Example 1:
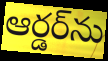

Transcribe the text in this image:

ఆర్డర్‌ను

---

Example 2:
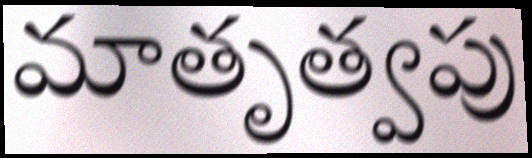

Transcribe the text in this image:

మాతృత్వపు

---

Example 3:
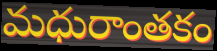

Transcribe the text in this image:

మధురాంతకం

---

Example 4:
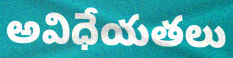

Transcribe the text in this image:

అవిధేయతలు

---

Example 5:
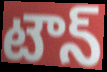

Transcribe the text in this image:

టౌన్